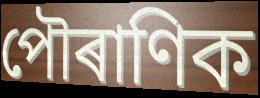
পৌৰাণিক